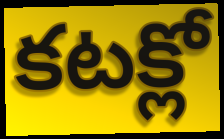
కటక్లో